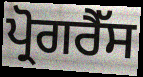
ਪ੍ਰੋਗਰੈੱਸ